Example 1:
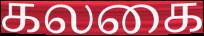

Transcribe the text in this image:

கலகை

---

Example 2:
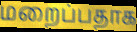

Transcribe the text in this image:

மறைப்பதாக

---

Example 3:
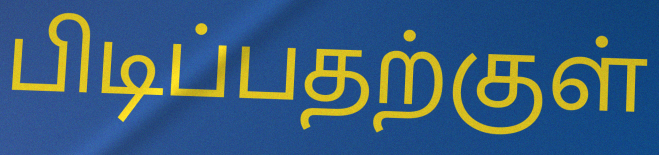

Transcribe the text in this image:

பிடிப்பதற்குள்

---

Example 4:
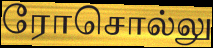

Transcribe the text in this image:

ரோசொல்லு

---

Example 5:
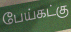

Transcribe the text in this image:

பேய்கட்கு